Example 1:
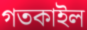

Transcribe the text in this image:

গতকাইল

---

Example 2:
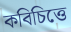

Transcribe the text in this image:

কবিচিত্তে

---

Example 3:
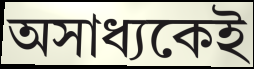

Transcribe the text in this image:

অসাধ্যকেই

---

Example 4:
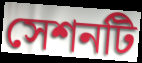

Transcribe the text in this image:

সেশনটি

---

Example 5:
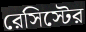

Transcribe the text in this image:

রেসিস্টের